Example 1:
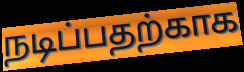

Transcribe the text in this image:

நடிப்பதற்காக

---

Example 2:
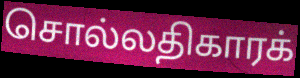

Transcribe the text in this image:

சொல்லதிகாரக்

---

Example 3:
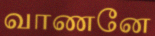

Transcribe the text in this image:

வாணனே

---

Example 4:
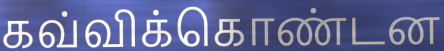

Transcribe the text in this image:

கவ்விக்கொண்டன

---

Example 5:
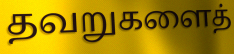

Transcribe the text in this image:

தவறுகளைத்